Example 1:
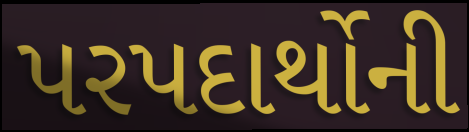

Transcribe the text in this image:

પરપદાર્થોની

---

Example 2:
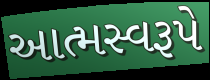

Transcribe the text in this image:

આત્મસ્વરૂપે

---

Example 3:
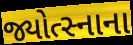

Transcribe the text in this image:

જ્યોત્સ્નાના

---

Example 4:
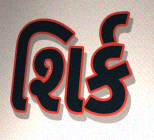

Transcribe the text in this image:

શિર્ક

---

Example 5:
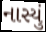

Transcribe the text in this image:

નાસ્યું